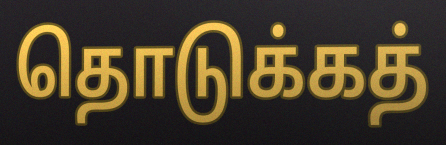
தொடுக்கத்